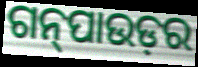
ଗନ୍‍ପାଉଡ଼ର